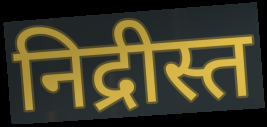
निद्रीस्त